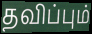
தவிப்பும்